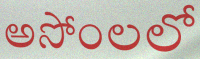
అసోంలలో